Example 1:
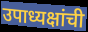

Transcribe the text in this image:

उपाध्यक्षांची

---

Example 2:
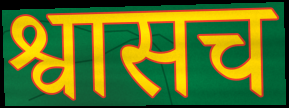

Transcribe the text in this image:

श्वासच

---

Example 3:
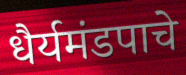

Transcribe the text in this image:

धैर्यमंडपाचे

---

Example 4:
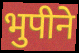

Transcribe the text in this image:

भुपीने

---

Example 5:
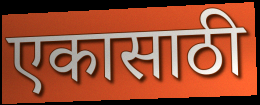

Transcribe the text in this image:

एकासाठी